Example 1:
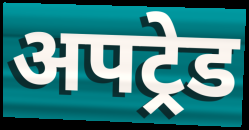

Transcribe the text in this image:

अपट्रेड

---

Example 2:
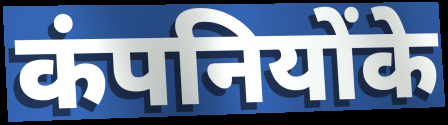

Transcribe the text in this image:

कंपनियोंके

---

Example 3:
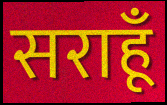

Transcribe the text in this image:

सराहूँ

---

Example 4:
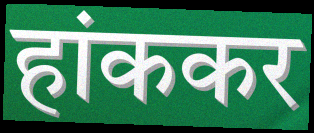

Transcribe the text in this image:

हांककर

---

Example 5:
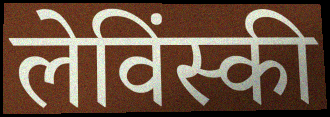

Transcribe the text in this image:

लेविंस्की